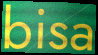
bisa